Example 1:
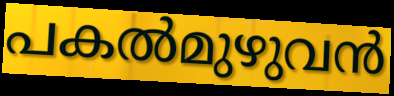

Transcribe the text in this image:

പകൽമുഴുവൻ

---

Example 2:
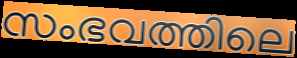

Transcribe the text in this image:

സംഭവത്തിലെ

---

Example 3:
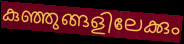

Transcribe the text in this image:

കുഞ്ഞുങ്ങളിലേക്കും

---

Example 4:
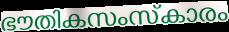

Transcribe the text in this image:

ഭൗതികസംസ്‌കാരം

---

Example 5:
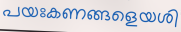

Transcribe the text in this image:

പയഃകണങ്ങളെയശി